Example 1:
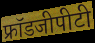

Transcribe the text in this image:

फ्रॉडजीपीटी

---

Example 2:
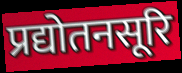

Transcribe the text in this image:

प्रद्योतनसूरि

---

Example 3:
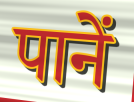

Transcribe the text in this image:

पानें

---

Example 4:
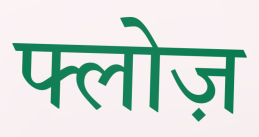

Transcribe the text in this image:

फ्लोज़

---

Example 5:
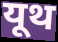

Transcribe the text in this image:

यूथ